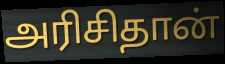
அரிசிதான்